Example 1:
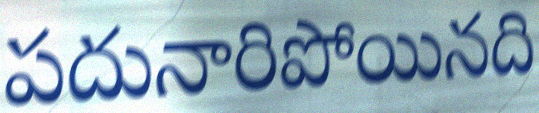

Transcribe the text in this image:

పదునారిపోయినది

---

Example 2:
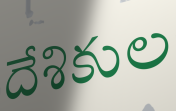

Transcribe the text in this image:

దేశికుల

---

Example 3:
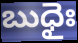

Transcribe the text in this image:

బుధైః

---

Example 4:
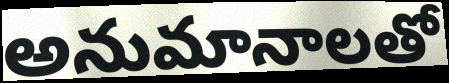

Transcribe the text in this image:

అనుమానాలతో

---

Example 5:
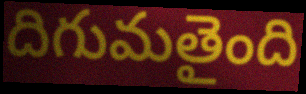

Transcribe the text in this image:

దిగుమతైంది